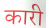
कारी